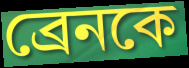
ব্রেনকে